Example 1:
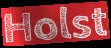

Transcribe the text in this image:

Holst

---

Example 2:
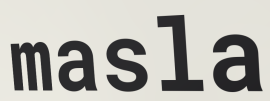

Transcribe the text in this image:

masla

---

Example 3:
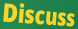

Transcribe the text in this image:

Discuss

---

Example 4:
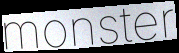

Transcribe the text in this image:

monster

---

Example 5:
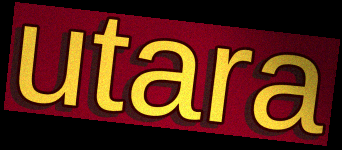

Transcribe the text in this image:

utara